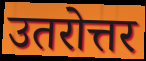
उतरोत्तर